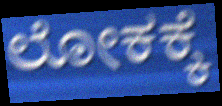
ಲೋಕಕ್ಕೆ